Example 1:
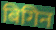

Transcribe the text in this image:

बिगिन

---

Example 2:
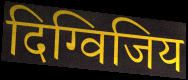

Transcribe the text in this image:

दिग्विजिय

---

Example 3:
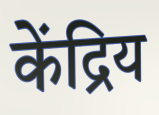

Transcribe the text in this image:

केंद्रिय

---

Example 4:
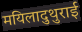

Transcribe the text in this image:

मयिलादुथुराई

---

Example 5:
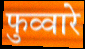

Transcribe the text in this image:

फुव्वारे